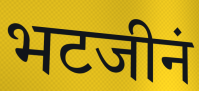
भटजीनं